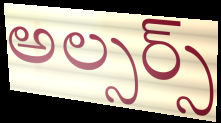
అల్సర్స్